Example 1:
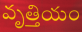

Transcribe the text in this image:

వృత్తియం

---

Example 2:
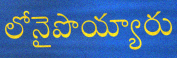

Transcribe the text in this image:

లోనైపొయ్యారు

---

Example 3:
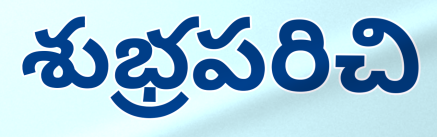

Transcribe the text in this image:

శుభ్రపరిచి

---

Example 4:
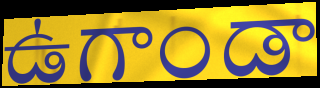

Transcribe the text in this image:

ఉగాండా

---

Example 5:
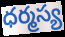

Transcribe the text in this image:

ధర్మస్య